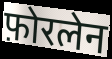
फ़ोरलेन